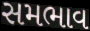
સમભાવ